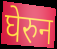
घेरुन